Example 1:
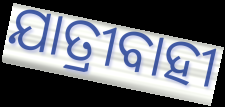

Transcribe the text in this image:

ଯାତ୍ରୀବାହୀ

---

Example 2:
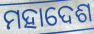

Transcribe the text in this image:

ମହାଦେଶ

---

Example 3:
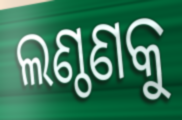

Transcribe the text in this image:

ଲଣ୍ଠଣକୁ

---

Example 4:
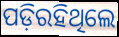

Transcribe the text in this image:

ପଡ଼ିରହିଥିଲେ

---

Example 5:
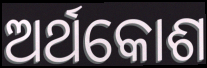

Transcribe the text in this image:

ଅର୍ଥକୋଶ